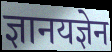
ज्ञानयज्ञेन